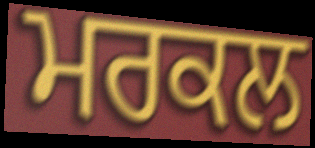
ਮਰਕਲ